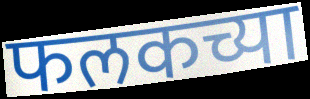
फलकच्या